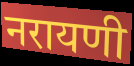
नरायणी